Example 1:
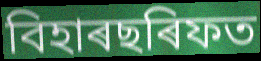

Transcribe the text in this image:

বিহাৰছৰিফত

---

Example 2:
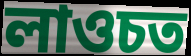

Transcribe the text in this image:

লাওচত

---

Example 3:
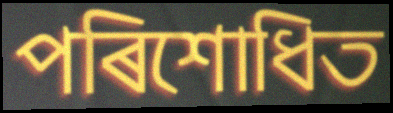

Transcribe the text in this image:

পৰিশোধিত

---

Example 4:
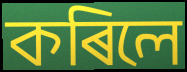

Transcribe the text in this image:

কৰিলে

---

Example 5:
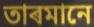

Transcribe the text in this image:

তাৰমানে